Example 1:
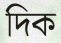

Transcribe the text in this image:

দিক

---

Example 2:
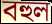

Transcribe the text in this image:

বহুল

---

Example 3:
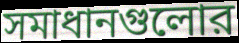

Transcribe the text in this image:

সমাধানগুলোর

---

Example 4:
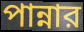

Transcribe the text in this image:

পান্নার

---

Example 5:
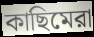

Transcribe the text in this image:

কাছিমেরা